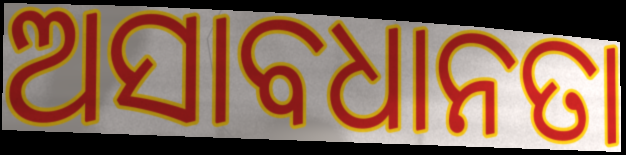
ଅସାବଧାନତା